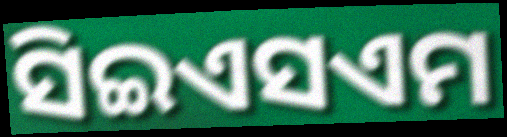
ସିଇଏସଏମ